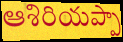
ఆశిరియప్పా